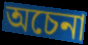
অচেনা